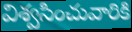
విశ్వసించువారికి